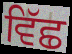
ਵਿੱਛ